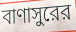
বাণাসুরের